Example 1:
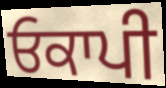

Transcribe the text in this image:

ਓਕਾਪੀ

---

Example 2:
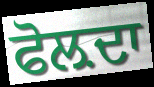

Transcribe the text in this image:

ਫੋਲ਼ਦਾ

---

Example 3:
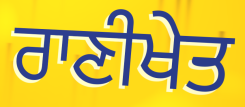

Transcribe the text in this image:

ਰਾਣੀਖੇਤ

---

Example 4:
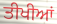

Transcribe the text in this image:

ਤੀਖੀਆਂ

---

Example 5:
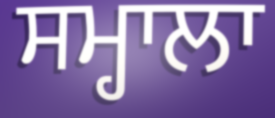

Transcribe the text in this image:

ਸਮ੍ਹ੍ਹਾਲਾ